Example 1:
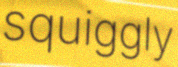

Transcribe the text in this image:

squiggly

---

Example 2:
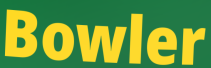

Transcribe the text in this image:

Bowler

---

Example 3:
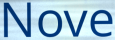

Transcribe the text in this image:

Nove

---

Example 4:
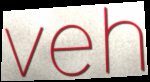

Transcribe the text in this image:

veh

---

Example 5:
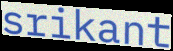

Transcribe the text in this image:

srikant